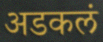
अडकलं